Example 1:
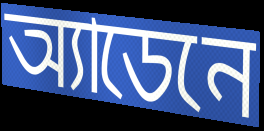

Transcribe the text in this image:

অ্যাডেনে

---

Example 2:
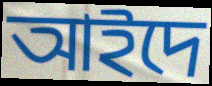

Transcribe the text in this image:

আইদে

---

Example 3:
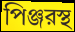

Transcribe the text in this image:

পিঞ্জরস্থ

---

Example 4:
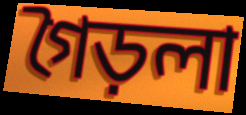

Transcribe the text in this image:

গৈড়লা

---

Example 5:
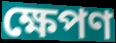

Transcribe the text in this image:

ক্ষেপণ